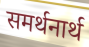
समर्थनार्थ